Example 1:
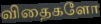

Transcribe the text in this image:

விதைகளோ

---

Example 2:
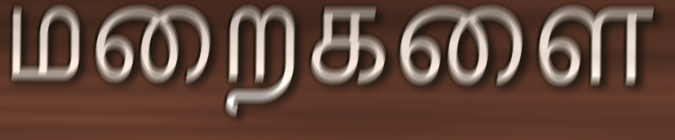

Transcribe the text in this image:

மறைகளை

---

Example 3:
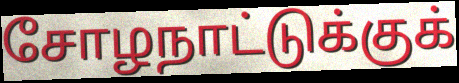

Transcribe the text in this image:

சோழநாட்டுக்குக்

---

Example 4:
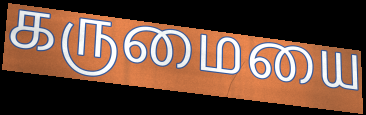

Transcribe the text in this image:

கருமையை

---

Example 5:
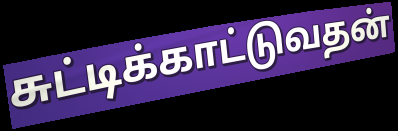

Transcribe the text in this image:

சுட்டிக்காட்டுவதன்